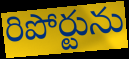
రిపోర్టును